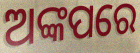
ଅଙ୍କପରେ